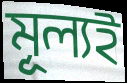
মূল্যই